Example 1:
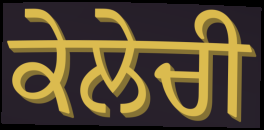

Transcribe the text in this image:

ਕੇਲੇਚੀ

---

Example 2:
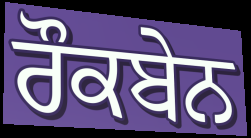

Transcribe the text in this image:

ਰੌਕਬੇਨ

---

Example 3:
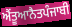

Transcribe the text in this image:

ਐਂਤੂਆਨੈਤਪੰਜਾਬੀ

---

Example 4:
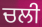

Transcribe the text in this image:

ਚਲੀ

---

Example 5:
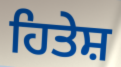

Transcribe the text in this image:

ਹਿਤੇਸ਼